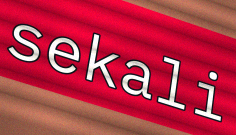
sekali